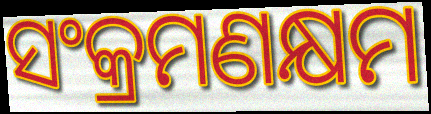
ସଂକ୍ରମଣକ୍ଷମ